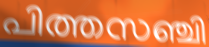
പിത്തസഞ്ചി